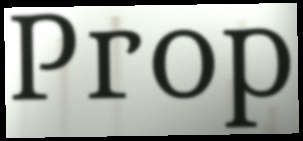
Prop